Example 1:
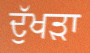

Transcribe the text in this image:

ਦੁੱਖਡ਼ਾ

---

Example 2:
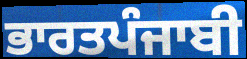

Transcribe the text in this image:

ਭਾਰਤਪੰਜਾਬੀ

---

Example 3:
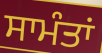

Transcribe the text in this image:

ਸਾਮੰਤਾਂ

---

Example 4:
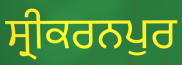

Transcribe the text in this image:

ਸ੍ਰੀਕਰਨਪੁਰ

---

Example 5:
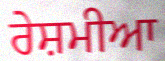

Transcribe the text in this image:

ਰੇਸ਼ਮੀਆ